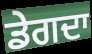
ਡੇਗਦਾ